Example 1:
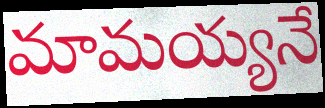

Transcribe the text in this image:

మామయ్యనే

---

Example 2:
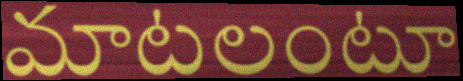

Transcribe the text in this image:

మాటలంటూ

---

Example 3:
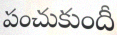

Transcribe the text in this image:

పంచుకుందీ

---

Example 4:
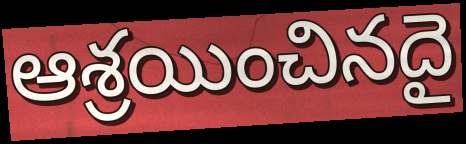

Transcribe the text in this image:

ఆశ్రయించినదై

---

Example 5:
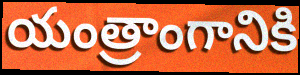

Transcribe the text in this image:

యంత్రాంగానికి